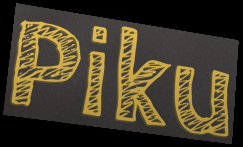
Piku